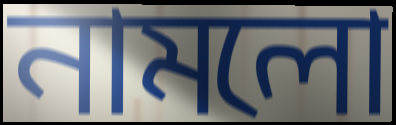
নামলো